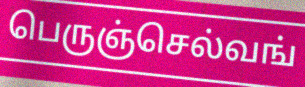
பெருஞ்செல்வங்